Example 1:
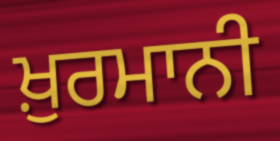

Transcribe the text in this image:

ਖ਼ੁਰਮਾਨੀ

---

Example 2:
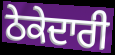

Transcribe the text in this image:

ਠੇਕੇਦਾਰੀ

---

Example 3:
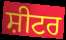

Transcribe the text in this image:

ਸ਼ੀਟਰ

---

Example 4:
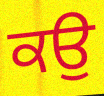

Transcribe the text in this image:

ਕਉ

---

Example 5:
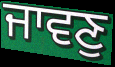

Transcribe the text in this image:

ਜਾਵਣੁ